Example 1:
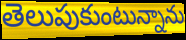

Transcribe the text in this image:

తెలుపుకుంటున్నాను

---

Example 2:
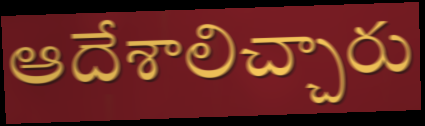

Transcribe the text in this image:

ఆదేశాలిచ్చారు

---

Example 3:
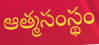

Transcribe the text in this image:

ఆత్మసంస్థం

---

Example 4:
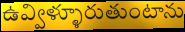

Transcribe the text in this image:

ఉవ్విళ్ళూరుతుంటాను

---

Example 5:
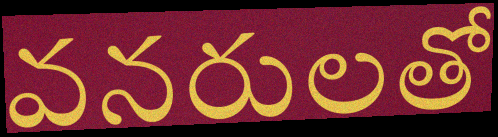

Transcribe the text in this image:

వనరులతో